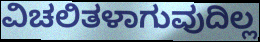
ವಿಚಲಿತಳಾಗುವುದಿಲ್ಲ